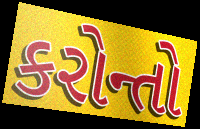
કરોન્તો